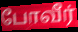
போவீர்